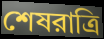
শেষরাত্রি